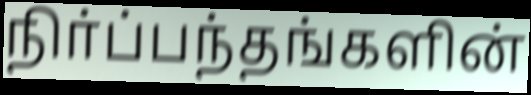
நிர்ப்பந்தங்களின்